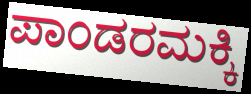
ಪಾಂಡರಮಕ್ಕಿ